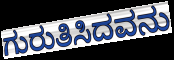
ಗುರುತಿಸಿದವನು